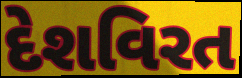
દેશવિરત